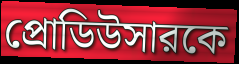
প্রোডিউসারকে